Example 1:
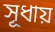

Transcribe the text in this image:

সূধায়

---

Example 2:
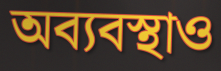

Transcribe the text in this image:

অব্যবস্থাও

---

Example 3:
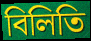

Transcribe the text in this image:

বিলিতি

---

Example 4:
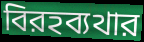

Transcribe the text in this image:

বিরহব্যথার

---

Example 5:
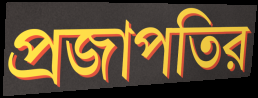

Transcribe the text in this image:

প্রজাপতির